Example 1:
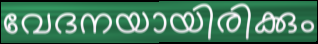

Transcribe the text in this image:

വേദനയായിരിക്കും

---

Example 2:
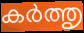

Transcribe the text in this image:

കർത്തൃ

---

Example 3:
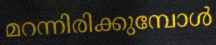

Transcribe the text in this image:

മറന്നിരിക്കുമ്പോൾ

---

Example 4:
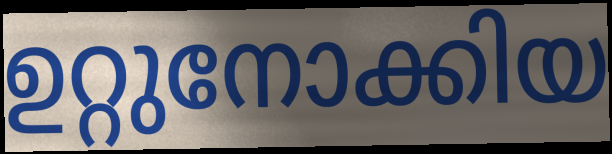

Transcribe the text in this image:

ഉറ്റുനോക്കിയ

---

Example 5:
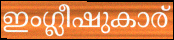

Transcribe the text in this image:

ഇംഗ്ലീഷുകാര്